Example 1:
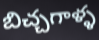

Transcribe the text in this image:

బిచ్చగాళ్ళ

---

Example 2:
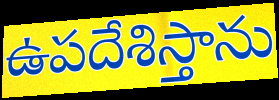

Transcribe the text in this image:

ఉపదేశిస్తాను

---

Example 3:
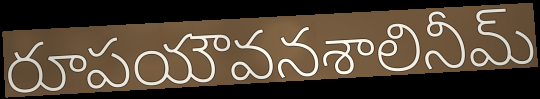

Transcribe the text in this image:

రూపయౌవనశాలినీమ్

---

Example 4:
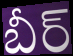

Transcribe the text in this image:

బీర్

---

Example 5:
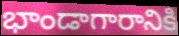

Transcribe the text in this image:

భాండాగారానికి